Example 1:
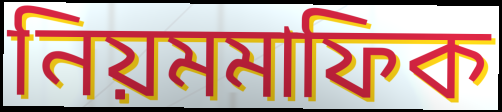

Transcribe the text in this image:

নিয়মমাফিক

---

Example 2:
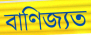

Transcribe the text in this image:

বাণিজ্যত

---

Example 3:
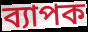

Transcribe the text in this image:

ব্যাপক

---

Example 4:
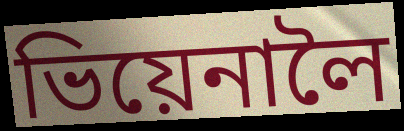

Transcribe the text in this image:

ভিয়েনালৈ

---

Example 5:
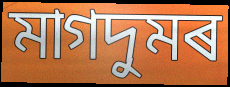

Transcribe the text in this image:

মাগদুমৰ